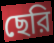
ছেরি